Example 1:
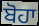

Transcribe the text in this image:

ਬੋਹਾ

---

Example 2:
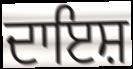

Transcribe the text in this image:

ਦਾਇਸ਼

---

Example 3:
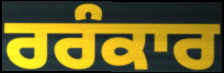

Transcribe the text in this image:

ਰਰੰਕਾਰ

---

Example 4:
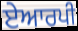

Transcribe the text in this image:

ਏਆਰਪੀ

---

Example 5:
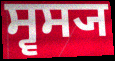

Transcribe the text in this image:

ਸ੍ਵਸ੍ਯ